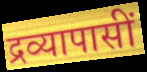
द्रव्यापासीं